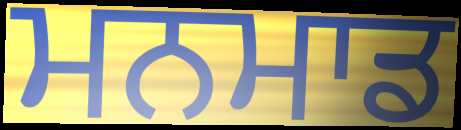
ਮਨਮਾਡ